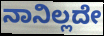
ನಾನಿಲ್ಲದೇ